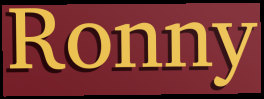
Ronny